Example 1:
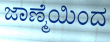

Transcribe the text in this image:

ಜಾಣ್ಮೆಯಿಂದ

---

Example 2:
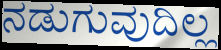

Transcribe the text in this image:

ನಡುಗುವುದಿಲ್ಲ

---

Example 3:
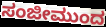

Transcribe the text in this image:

ಸಂಜೀಮುಂದ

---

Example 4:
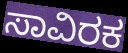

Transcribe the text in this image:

ಸಾವಿರಕ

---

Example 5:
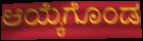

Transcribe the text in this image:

ಆಯ್ಕೆಗೊಂಡ